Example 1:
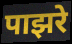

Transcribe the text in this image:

पाझरे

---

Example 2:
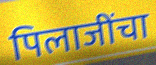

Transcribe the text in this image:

पिलाजींचा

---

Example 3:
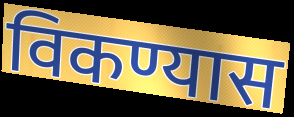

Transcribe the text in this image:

विकण्यास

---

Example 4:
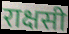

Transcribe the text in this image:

राक्षसी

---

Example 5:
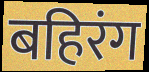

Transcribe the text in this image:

बहिरंग